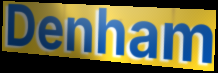
Denham